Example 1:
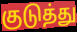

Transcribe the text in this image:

குடுத்து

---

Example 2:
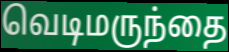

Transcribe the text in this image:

வெடிமருந்தை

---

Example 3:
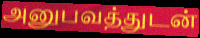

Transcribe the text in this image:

அனுபவத்துடன்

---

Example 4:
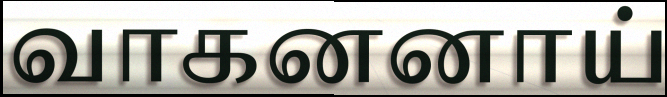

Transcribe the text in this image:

வாகனனாய்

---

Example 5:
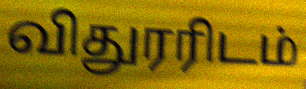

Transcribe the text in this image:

விதுரரிடம்